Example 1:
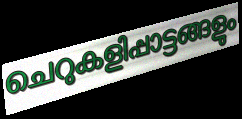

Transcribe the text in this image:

ചെറുകളിപ്പാട്ടങ്ങളും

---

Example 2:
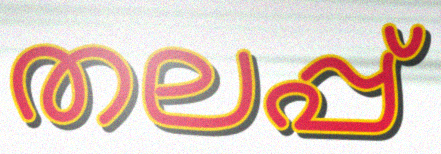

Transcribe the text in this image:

തലപ്പ്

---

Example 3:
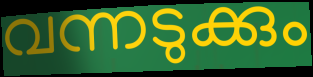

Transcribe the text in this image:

വന്നടുക്കും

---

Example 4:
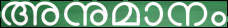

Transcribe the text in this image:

അനുമാനം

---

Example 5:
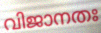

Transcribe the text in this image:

വിജാനതഃ